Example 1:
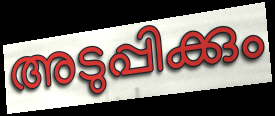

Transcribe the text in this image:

അടുപ്പിക്കും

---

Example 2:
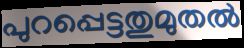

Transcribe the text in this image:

പുറപ്പെട്ടതുമുതൽ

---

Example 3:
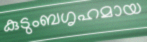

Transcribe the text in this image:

കുടുംബഗൃഹമായ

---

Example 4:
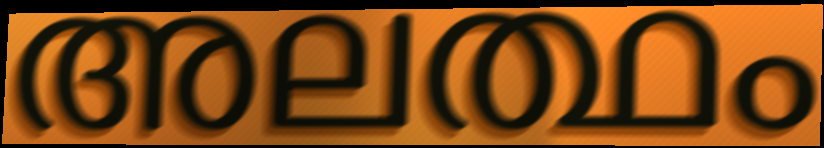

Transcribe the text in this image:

അലത്ഥം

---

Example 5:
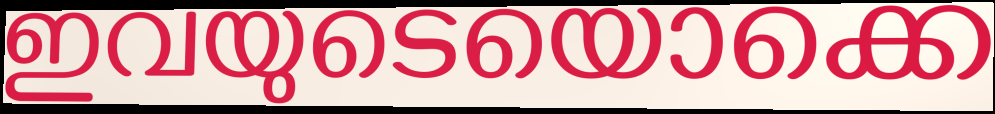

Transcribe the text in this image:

ഇവയുടെയൊക്കെ